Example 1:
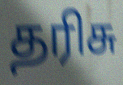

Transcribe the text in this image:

தரிசு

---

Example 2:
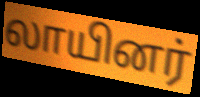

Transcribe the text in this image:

லாயினர்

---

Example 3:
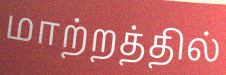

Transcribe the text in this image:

மாற்றத்தில்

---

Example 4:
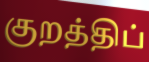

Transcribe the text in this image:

குறத்திப்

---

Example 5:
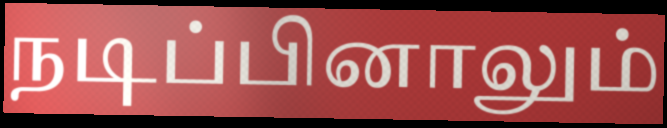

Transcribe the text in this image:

நடிப்பினாலும்